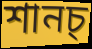
শানচ্